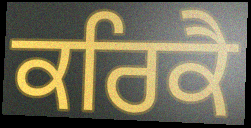
ਕਰਿਕੈ